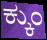
ಕ್ಕುಂ